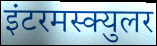
इंटरमस्क्युलर